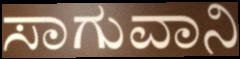
ಸಾಗುವಾನಿ